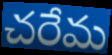
చరేమ